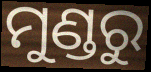
ମୁଣ୍ଡରୁ